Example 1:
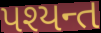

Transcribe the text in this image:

પશ્યન્ત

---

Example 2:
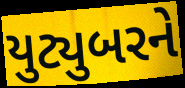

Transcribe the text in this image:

યુટ્યુબરને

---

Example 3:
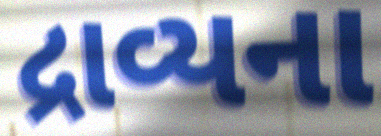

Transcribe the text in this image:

દ્રાવ્યના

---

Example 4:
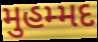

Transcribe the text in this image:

મુહમ્મદ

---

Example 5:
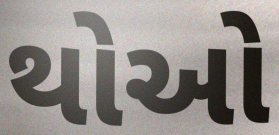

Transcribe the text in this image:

થોઓ